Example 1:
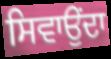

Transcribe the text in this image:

ਸਿਵਾਉਂਦਾ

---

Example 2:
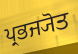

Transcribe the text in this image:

ਪ੍ਰਭਜ੍ਯੋਤ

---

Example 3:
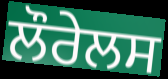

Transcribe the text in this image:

ਲੌਰੇਲਸ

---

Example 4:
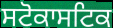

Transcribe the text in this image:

ਸਟੋਕਾਸਟਿਕ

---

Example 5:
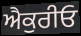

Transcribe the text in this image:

ਐਕੁਰੀਓ